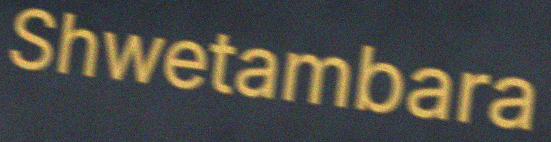
Shwetambara